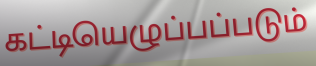
கட்டியெழுப்பப்படும்